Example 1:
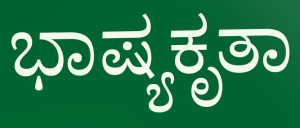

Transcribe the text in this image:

ಭಾಷ್ಯಕೃತಾ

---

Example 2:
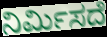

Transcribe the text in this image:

ನಿರ್ಮಿಸದೆ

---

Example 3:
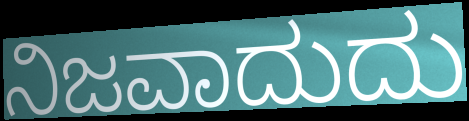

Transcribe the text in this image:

ನಿಜವಾದುದು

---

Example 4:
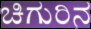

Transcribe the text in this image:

ಚಿಗುರಿನ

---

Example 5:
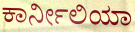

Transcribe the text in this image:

ಕಾರ್ನೀಲಿಯಾ